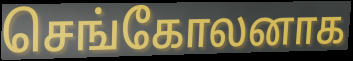
செங்கோலனாக